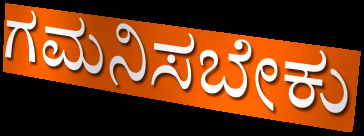
ಗಮನಿಸಬೇಕು